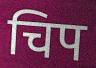
चिप